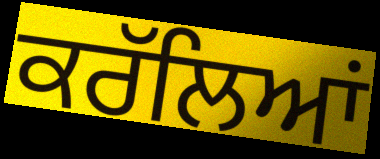
ਕਰੱਲਿਆਂ